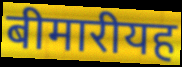
बीमारीयह